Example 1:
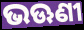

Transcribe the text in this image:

ଭଊଣୀ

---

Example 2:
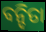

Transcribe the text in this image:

ବନ୍ଦିତା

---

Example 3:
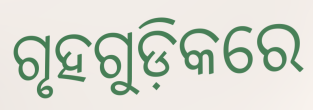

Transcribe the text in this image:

ଗୃହଗୁଡ଼ିକରେ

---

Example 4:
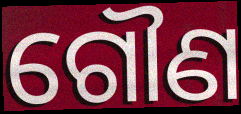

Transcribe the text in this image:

ଗୌଣ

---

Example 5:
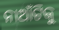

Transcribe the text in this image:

ନାଆଁଟିକୁ